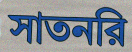
সাতনরি